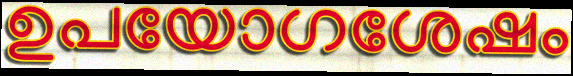
ഉപയോഗശേഷം